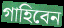
গাহিবেন